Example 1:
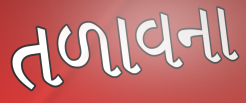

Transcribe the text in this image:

તળાવના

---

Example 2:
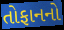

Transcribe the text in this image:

તોફાનનો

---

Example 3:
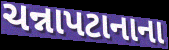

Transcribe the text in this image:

ચન્નાપટાનાના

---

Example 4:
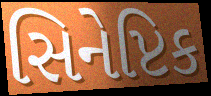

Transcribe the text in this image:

સિનેપ્ટિક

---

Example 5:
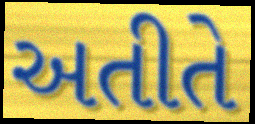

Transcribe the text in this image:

અતીતે